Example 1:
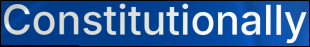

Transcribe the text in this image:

Constitutionally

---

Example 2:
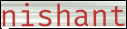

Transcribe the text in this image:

nishant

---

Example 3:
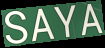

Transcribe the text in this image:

SAYA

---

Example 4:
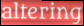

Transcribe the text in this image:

altering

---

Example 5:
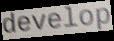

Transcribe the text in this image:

develop